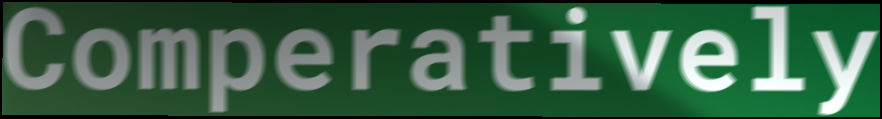
Comperatively